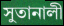
সুতানালী